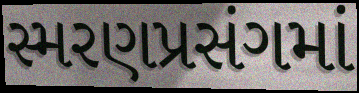
સ્મરણપ્રસંગમાં